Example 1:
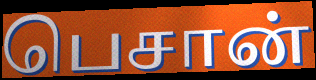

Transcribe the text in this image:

பெசான்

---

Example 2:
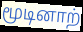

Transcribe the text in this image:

மூடினாற்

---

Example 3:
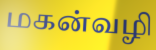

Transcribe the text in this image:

மகன்வழி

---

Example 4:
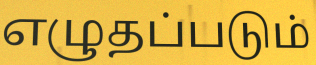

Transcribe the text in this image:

எழுதப்படும்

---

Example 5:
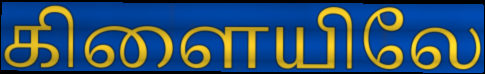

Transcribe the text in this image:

கிளையிலே